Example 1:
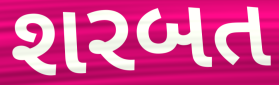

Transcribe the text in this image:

શરબત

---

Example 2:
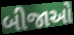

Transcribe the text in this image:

બીજાઓ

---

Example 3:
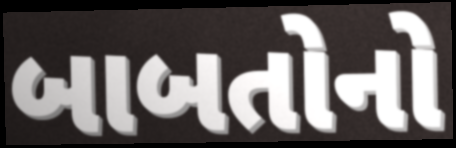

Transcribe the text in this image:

બાબતોનો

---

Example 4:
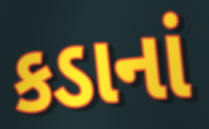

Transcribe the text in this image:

કડાનાં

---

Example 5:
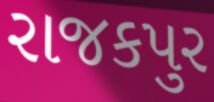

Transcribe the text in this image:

રાજકપુર